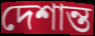
দেশান্ত